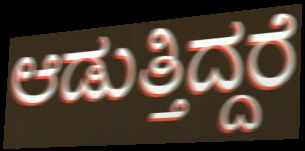
ಆಡುತ್ತಿದ್ದರೆ